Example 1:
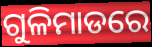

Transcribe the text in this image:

ଗୁଳିମାଡରେ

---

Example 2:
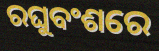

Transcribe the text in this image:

ରଘୁବଂଶରେ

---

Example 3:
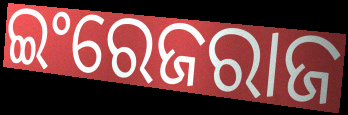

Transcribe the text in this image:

ଇଂରେଜରାଜ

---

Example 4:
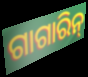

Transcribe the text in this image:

ଗାଗାରିନ୍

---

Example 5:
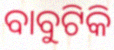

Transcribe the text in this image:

ବାବୁଟିକି